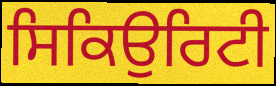
ਸਿਕਿਉਰਿਟੀ